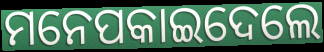
ମନେପକାଇଦେଲେ